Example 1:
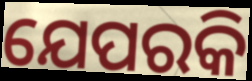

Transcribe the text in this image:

ଯେପରକି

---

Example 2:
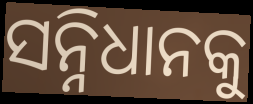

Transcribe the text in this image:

ସନ୍ନିଧାନକୁ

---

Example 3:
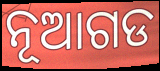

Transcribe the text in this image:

ନୂଆଗଡ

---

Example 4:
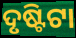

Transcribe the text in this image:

ଦୃଷ୍ଟିଟା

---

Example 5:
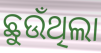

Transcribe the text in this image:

ଛୁଉଁଥିଲା